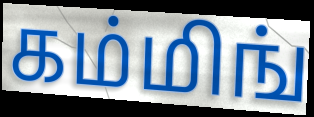
கம்மிங்